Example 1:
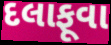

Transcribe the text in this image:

દલાફૂવા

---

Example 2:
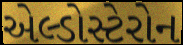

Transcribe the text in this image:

એલ્ડોસ્ટેરોન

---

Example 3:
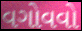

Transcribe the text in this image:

વગોવવો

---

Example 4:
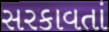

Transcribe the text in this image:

સરકાવતાં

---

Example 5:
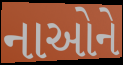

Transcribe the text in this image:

નાઓને